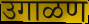
उगाळण